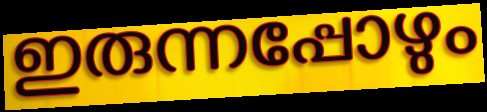
ഇരുന്നപ്പോഴും